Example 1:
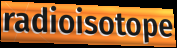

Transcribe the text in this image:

radioisotope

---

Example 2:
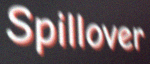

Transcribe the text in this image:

Spillover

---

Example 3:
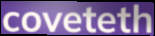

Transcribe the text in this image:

coveteth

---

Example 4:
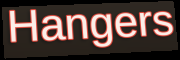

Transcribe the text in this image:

Hangers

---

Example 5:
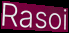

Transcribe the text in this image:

Rasoi